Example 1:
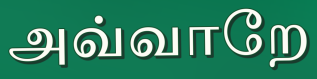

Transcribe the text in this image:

அவ்வாறே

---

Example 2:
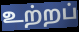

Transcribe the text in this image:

உற்றப்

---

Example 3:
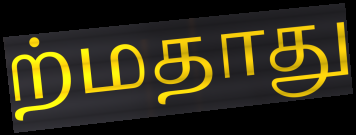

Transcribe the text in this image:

ற்மதாது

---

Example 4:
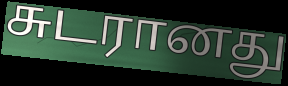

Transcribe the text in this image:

சுடரானது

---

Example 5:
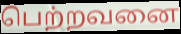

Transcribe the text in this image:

பெற்றவனை